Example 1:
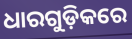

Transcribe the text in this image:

ଧାରଗୁଡ଼ିକରେ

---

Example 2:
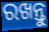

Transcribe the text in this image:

ରଖନ୍ତୁ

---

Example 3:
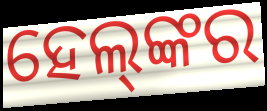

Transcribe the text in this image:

ହେଲ୍‌ଙ୍କର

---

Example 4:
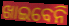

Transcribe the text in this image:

ଖାଇବେନି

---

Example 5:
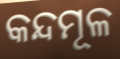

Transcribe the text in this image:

କନ୍ଦମୂଳ